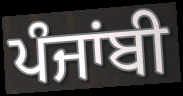
ਪੰਜਾਂਬੀ